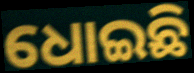
ଧୋଇଛି